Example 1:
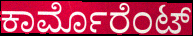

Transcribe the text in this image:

ಕಾರ್ಮೊರೆಂಟ್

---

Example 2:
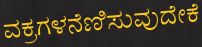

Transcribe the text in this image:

ವಕ್ರಗಳನೆಣಿಸುವುದೇಕೆ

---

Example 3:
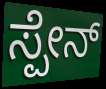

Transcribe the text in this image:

ಸ್ಪೇನ್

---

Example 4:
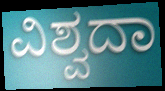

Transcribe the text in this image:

ವಿಶ್ವದಾ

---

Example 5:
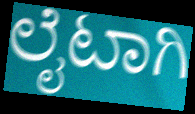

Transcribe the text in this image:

ಲೈಟಾಗಿ